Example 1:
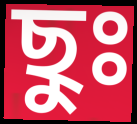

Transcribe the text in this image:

ছুঃ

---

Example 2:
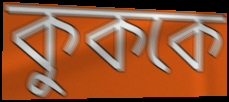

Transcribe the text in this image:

কুককে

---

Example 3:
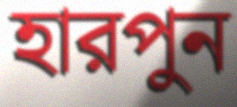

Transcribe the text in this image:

হারপুন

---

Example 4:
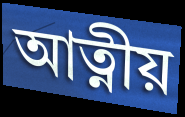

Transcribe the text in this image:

আত্নীয়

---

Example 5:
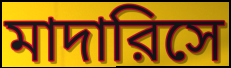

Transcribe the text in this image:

মাদারিসে